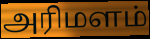
அரிமளம்